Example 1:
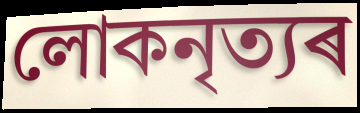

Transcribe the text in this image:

লোকনৃত্যৰ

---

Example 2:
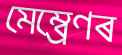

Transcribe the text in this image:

মেম্ব্ৰেণৰ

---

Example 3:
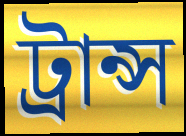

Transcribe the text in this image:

ট্ৰান্স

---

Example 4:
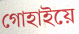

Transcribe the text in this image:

গোহাইয়ে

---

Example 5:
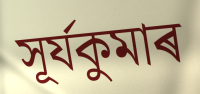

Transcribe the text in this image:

সূৰ্যকুমাৰ